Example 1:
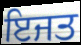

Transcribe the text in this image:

ਇਜਤ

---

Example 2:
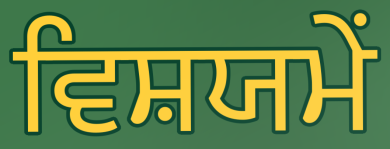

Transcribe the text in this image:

ਵਿਸ਼ਯਮੇਂ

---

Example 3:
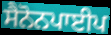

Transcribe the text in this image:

ਸੈਨੋਨਪਾਈਪ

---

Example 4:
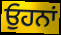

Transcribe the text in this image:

ਓੁਹਨਾਂ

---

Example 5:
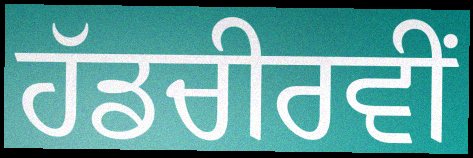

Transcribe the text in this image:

ਹੱਡਚੀਰਵੀਂ